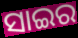
ସାଇର